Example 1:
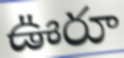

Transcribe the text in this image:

ఊరూ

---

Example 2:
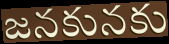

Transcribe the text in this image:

జనకునకు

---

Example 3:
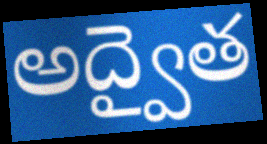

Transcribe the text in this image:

అద్వైత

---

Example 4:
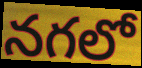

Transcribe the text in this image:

నగలో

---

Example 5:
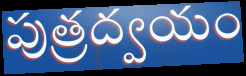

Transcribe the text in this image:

పుత్రద్వయం